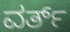
ವರ್ತ್